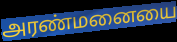
அரண்மனையை